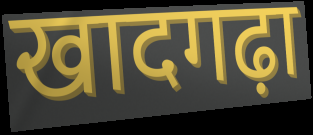
खादगढ़ा